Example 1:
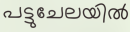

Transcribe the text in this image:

പട്ടുചേലയിൽ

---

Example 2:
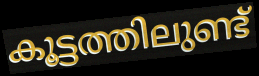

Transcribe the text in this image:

കൂട്ടത്തിലുണ്ട്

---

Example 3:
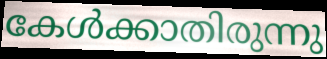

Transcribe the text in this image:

കേൾക്കാതിരുന്നു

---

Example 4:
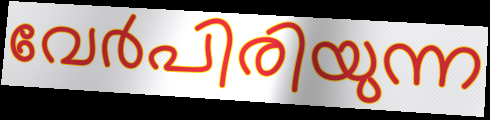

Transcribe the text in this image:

വേർപിരിയുന്ന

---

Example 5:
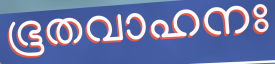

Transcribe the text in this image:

ഭൂതവാഹനഃ